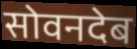
सोवनदेब